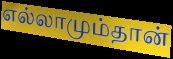
எல்லாமும்தான்